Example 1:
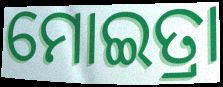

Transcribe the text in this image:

ମୋଇତ୍ରା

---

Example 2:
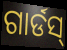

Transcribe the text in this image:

ଗାର୍ଡସ୍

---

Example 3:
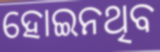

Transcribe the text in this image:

ହୋଇନଥିବ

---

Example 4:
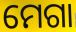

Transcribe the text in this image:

ମେଗା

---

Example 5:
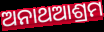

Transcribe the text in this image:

ଅନାଥଆଶ୍ରମ